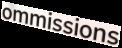
ommissions